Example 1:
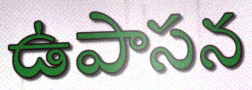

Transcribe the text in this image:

ఉపాసన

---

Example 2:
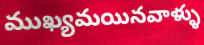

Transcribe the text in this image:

ముఖ్యమయినవాళ్ళు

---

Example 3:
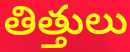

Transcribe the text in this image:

తిత్తులు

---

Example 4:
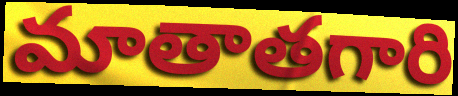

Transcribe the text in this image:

మాతాతగారి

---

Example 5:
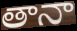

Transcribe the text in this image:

తానా